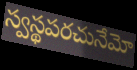
స్వస్థపరచునేమో